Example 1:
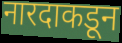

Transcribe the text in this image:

नारदाकडून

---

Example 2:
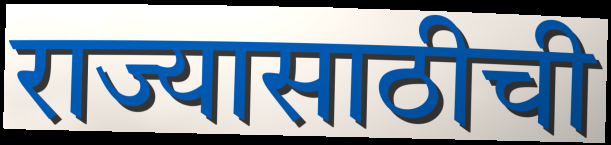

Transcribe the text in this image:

राज्यासाठीची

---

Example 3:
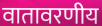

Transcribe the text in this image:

वातावरणीय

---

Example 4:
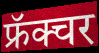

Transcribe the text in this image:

फ्रॅक्चर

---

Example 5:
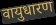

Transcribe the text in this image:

वायुधारण